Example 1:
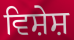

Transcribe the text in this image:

ਵਿਸ਼ੇਸ਼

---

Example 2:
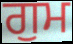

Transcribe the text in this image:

ਗੁਮ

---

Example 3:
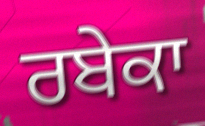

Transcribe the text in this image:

ਰਬੇਕਾ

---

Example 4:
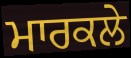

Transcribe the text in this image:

ਮਾਰਕਲੇ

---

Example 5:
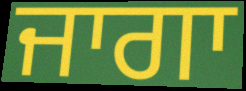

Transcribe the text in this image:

ਜਾਗਾ